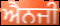
ਐਨਜੀ